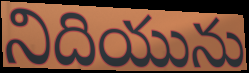
నిదియును